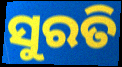
ସୁରତି